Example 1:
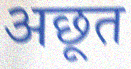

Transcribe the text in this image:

अछूत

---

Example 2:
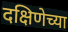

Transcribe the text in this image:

दक्षिणेच्या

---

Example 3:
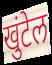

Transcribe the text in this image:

खुंटेल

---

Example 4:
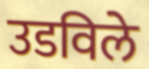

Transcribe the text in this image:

उडविले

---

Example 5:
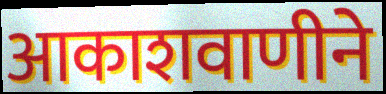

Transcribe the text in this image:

आकाशवाणीने